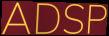
ADSP